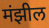
मंझील